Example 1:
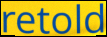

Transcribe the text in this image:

retold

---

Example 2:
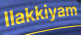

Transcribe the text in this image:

Ilakkiyam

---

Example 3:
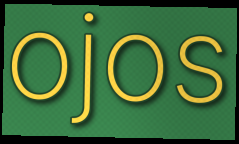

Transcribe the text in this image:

ojos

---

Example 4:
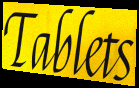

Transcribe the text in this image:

Tablets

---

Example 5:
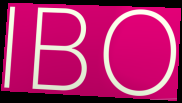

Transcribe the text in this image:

IBO